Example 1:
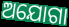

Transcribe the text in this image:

ଅଯୋଗା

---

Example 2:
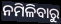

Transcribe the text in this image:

ନମିଳିବାରୁ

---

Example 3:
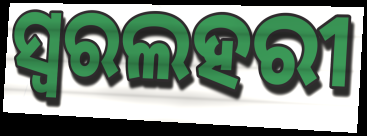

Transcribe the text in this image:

ସ୍ୱରଲହରୀ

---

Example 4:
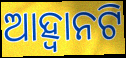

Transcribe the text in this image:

ଆହ୍ଵାନଟି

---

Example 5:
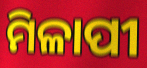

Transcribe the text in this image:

ମିଳାପୀ